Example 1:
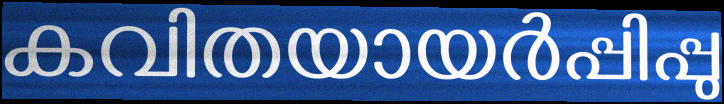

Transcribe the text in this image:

കവിതയായർപ്പിപ്പു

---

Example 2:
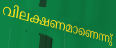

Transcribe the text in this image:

വിലക്ഷണമാണെന്നു്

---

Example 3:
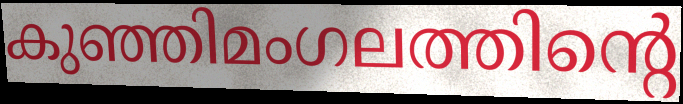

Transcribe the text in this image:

കുഞ്ഞിമംഗലത്തിന്റെ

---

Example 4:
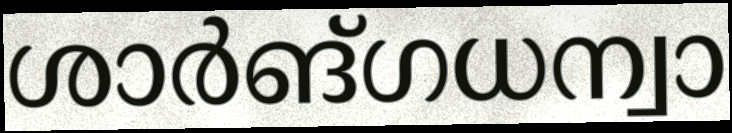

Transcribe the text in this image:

ശാർങ്ഗധന്വാ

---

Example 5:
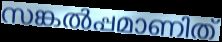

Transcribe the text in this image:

സങ്കൽപ്പമാണിത്